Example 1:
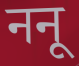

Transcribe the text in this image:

ननू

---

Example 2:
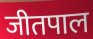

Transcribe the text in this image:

जीतपाल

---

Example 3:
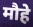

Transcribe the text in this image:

मौहे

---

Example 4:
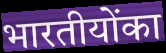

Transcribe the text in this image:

भारतीयोंका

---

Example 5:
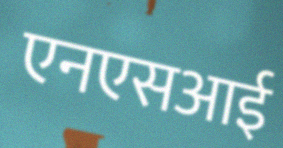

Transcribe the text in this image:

एनएसआई